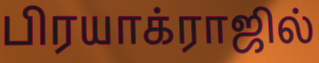
பிரயாக்ராஜில்